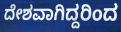
ದೇಶವಾಗಿದ್ದರಿಂದ